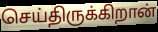
செய்திருக்கிறான்